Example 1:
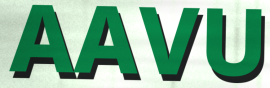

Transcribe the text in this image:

AAVU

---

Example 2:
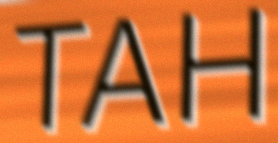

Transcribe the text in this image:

TAH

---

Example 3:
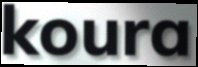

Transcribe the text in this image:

koura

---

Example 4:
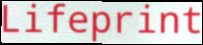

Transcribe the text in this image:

Lifeprint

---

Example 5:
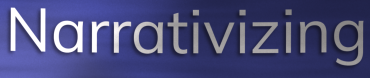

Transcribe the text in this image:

Narrativizing